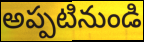
అప్పటినుండి